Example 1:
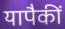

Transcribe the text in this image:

यापैकीं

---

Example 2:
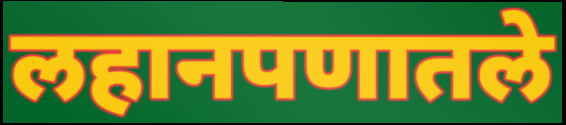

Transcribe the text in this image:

लहानपणातले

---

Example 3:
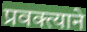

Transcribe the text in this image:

प्रवक्‍त्याने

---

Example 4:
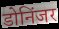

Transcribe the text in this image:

डोनिंजर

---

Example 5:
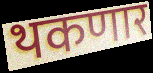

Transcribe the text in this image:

थकणार